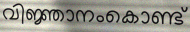
വിജ്ഞാനംകൊണ്ട്